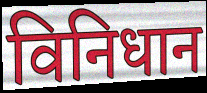
विनिधान